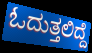
ಓದುತ್ತಲಿದ್ದೆ